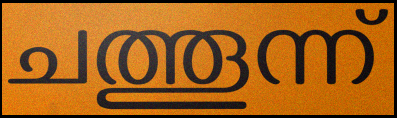
ചത്തൂന്ന്